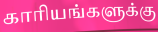
காரியங்களுக்கு